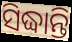
ସିଦ୍ଧାନ୍ତି